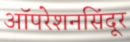
ऑपरेशनसिंदूर